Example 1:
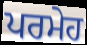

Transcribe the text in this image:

ਪਰਮੇਹ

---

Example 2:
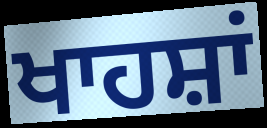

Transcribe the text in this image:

ਖਾਹਸ਼ਾਂ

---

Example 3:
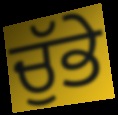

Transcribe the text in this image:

ਚੁੱਭੇ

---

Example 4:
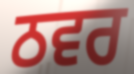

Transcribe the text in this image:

ਠਵਰ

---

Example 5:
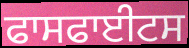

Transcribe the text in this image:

ਫਾਸਫਾਈਟਸ